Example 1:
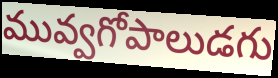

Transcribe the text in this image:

మువ్వగోపాలుడగు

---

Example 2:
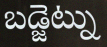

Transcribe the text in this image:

బడ్జెట్ను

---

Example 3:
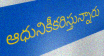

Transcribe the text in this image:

ఆధునికీకరిస్తున్నారు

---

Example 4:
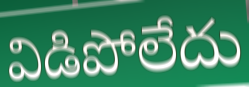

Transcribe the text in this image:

విడిపోలేదు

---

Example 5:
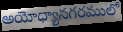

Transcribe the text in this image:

అయోధ్యానగరములో